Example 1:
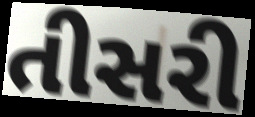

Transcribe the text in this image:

તીસરી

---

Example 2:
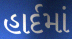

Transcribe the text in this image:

હાર્દમાં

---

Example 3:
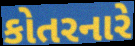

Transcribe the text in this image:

કોતરનારે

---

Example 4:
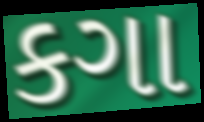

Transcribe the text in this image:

કગા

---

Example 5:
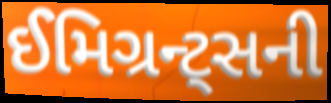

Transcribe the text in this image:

ઈમિગ્રન્ટ્સની